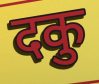
दकु